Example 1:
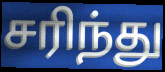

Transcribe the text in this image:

சரிந்து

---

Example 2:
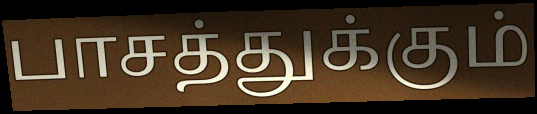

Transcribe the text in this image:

பாசத்துக்கும்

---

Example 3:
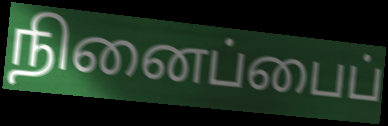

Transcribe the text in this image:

நினைப்பைப்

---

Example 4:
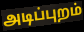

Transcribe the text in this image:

அடிப்புறம்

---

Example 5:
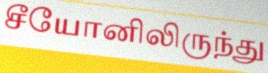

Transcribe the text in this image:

சீயோனிலிருந்து